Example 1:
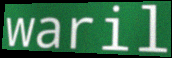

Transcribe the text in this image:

waril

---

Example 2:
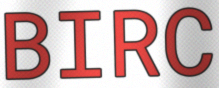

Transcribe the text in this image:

BIRC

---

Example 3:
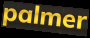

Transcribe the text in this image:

palmer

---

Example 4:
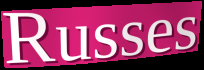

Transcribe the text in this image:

Russes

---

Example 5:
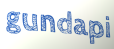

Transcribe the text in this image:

gundapi